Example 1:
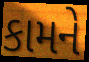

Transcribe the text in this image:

કામને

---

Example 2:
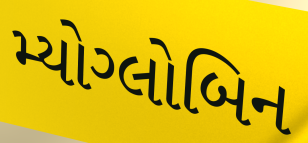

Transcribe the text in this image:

મ્યોગ્લોબિન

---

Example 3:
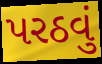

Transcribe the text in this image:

પરઠવું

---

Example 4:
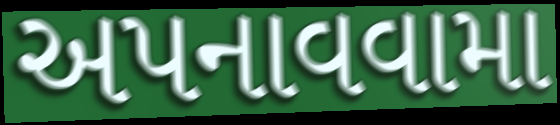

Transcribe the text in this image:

અપનાવવામા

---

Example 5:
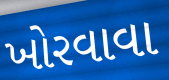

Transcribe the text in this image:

ખોરવાવા